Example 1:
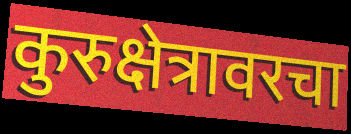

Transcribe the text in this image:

कुरुक्षेत्रावरचा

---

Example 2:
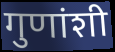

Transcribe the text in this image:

गुणांशी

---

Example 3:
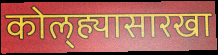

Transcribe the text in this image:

कोल्ह्यासारखा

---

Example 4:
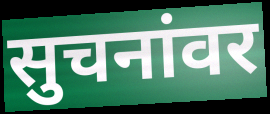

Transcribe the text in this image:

सुचनांवर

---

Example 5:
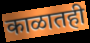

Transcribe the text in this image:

काळातही